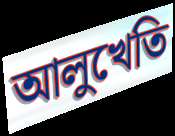
আলুখেতি